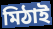
মিঠাই